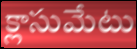
క్లాసుమేటు